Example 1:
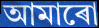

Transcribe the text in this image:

আমাৰো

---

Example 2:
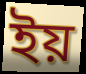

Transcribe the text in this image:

ইয়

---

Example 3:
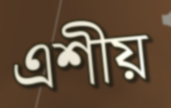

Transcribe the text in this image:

এশীয়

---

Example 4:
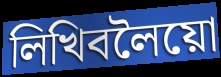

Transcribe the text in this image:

লিখিবলৈয়ো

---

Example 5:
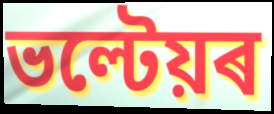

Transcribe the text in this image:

ভল্টেয়ৰ